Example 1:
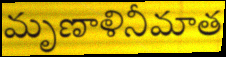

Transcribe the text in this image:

మృణాళినీమాత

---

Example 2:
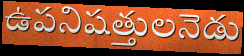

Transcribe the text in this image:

ఉపనిషత్తులనెడు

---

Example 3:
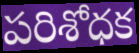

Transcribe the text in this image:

పరిశోధక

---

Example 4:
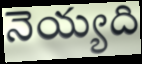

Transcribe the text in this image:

నెయ్యది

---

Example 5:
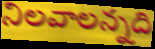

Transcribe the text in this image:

నిలవాలన్నది